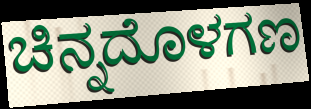
ಚಿನ್ನದೊಳಗಣ